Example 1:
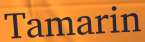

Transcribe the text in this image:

Tamarin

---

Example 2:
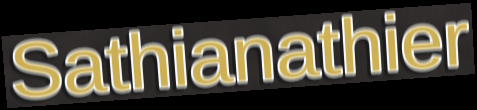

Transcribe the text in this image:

Sathianathier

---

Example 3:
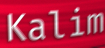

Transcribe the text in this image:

Kalim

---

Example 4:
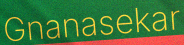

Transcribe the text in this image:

Gnanasekar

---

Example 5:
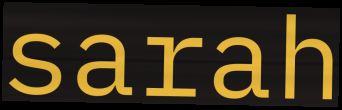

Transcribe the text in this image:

sarah